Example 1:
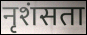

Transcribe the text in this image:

नृशंसता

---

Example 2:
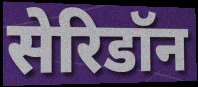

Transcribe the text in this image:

सेरिडॉन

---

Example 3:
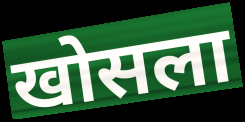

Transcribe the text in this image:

खोसला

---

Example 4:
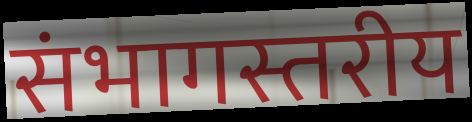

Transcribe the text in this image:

संभागस्तरीय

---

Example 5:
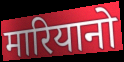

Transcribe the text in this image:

मारियानो